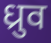
ध्रुव